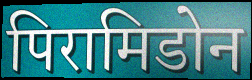
पिरामिडोन